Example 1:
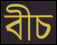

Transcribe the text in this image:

বীচ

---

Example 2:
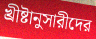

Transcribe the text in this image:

খ্রীষ্টানুসারীদের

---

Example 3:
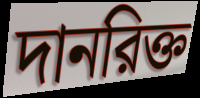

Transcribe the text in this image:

দানরিক্ত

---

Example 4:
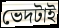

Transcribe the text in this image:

ভেদটাই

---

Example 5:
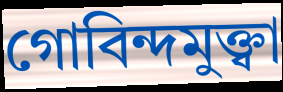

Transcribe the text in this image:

গোবিন্দমুক্ত্বা